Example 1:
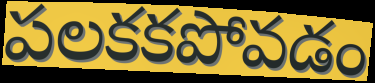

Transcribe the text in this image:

పలకకపోవడం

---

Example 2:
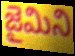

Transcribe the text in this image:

జైమిని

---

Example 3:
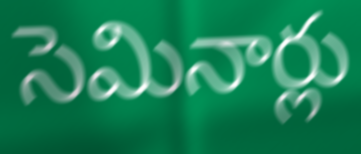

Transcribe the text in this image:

సెమినార్లు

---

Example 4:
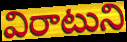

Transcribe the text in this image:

విరాటుని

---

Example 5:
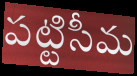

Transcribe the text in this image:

పట్టిసీమ